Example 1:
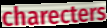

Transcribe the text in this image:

charecters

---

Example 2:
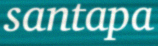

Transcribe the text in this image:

santapa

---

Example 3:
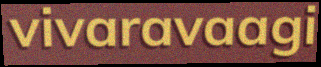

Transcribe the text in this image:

vivaravaagi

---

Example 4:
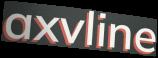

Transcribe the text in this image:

axvline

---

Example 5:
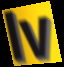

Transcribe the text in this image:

Iv